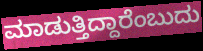
ಮಾಡುತ್ತಿದ್ದಾರೆಂಬುದು